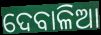
ଦେବାଳିଆ